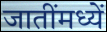
जातींमध्यें